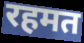
रहमत